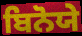
ਬਿਨੋਯੇ